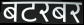
बटरबर